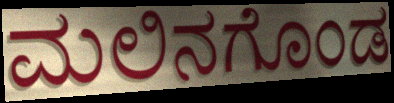
ಮಲಿನಗೊಂಡ